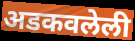
अडकवलेली